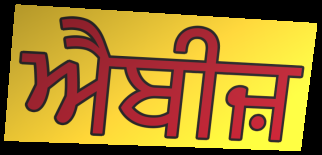
ਐਬੀਜ਼